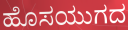
ಹೊಸಯುಗದ